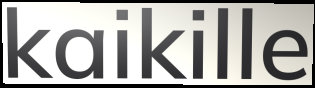
kaikille